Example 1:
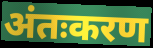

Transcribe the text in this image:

अंतःकरण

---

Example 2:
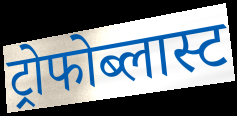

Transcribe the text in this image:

ट्रोफोब्लास्ट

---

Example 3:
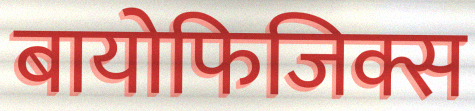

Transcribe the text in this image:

बायोफिजिक्स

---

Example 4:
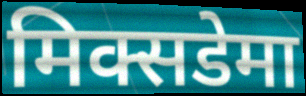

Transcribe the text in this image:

मिक्सडेमा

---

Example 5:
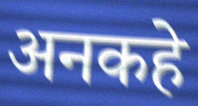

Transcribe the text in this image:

अनकहे